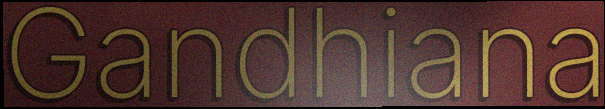
Gandhiana